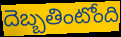
దెబ్బతింటోంది